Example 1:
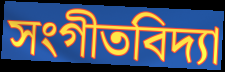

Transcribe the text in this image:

সংগীতবিদ্যা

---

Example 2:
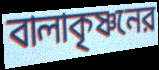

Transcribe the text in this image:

বালাকৃষ্ণনের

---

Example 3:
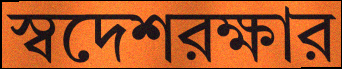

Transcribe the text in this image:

স্বদেশরক্ষার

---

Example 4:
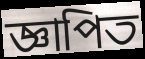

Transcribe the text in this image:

জ্ঞাপিত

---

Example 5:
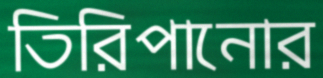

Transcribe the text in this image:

তিরিপানোর